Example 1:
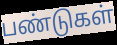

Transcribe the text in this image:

பண்டுகள்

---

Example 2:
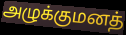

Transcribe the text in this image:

அழுக்குமனத்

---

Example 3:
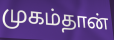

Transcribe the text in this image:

முகம்தான்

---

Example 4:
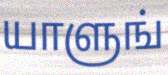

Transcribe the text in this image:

யாளுங்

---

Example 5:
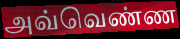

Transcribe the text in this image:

அவ்வெண்ண